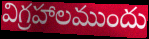
విగ్రహాలముందు